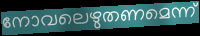
നോവലെഴുതണമെന്ന്